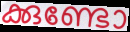
ക്കുണ്ടോ